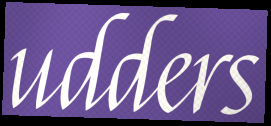
udders